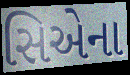
સિએના